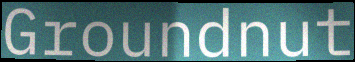
Groundnut